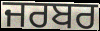
ਜਰਬਰ